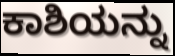
ಕಾಶಿಯನ್ನು